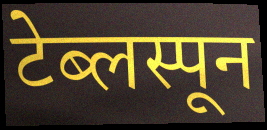
टेब्लस्पून